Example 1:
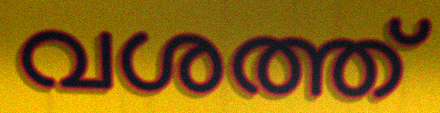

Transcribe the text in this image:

വശത്ത്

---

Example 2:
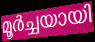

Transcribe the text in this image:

മൂർച്ചയായി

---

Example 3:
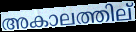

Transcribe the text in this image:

അകാലത്തില്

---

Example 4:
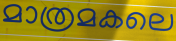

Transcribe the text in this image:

മാത്രമകലെ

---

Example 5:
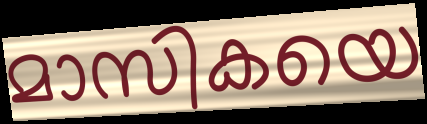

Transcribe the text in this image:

മാസികയെ